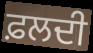
ਫ਼ਲਦੀ